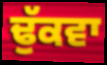
ਢੁੱਕਵਾ